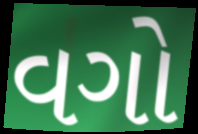
વગો